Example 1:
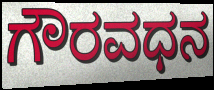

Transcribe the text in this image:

ಗೌರವಧನ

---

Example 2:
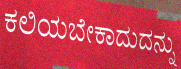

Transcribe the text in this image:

ಕಲಿಯಬೇಕಾದುದನ್ನು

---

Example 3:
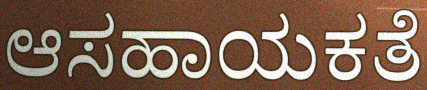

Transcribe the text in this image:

ಆಸಹಾಯಕತೆ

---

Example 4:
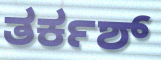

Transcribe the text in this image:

ತರ್ಕಶ್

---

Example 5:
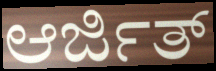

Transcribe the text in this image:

ಆರ್ಜಿತ್